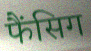
फैंसिग